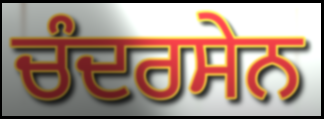
ਚੰਦਰਸੇਨ